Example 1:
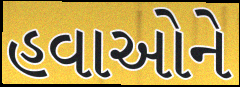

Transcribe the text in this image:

હવાઓને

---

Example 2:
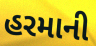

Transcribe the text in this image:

હરમાની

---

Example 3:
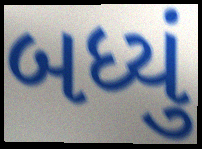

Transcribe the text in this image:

બધ્યું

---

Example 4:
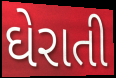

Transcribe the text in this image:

ઘેરાતી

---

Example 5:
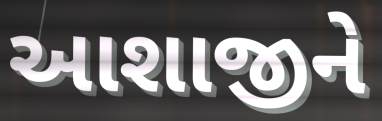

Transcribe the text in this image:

આશાજીને